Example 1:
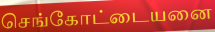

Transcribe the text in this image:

செங்கோட்டையனை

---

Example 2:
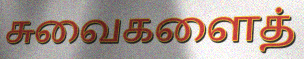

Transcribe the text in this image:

சுவைகளைத்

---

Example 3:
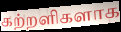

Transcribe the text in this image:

கற்றளிகளாக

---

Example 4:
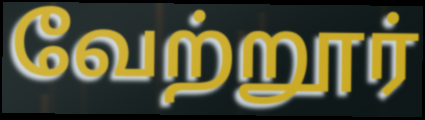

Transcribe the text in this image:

வேற்றூர்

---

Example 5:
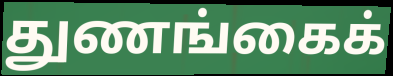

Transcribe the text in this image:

துணங்கைக்